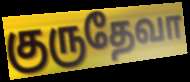
குருதேவா